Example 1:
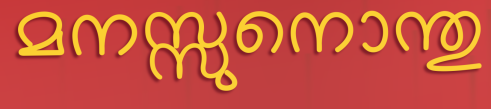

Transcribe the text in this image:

മനസ്സുനൊന്തു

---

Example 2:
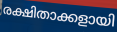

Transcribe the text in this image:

രക്ഷിതാക്കളായി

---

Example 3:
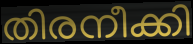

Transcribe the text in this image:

തിരനീക്കി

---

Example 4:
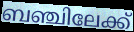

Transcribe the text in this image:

ബഞ്ചിലേക്ക്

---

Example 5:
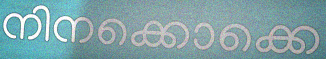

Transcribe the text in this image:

നിനക്കൊക്കെ